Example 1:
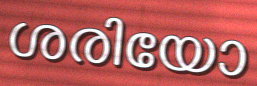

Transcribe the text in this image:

ശരിയോ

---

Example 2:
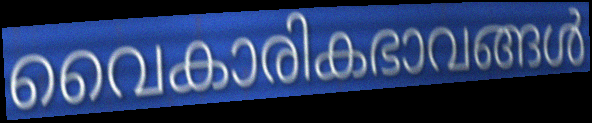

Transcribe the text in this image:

വൈകാരികഭാവങ്ങൾ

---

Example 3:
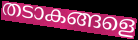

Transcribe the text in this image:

തടാകങ്ങളെ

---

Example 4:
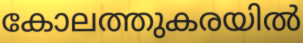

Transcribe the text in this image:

കോലത്തുകരയിൽ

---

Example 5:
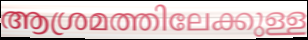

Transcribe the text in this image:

ആശ്രമത്തിലേക്കുള്ള